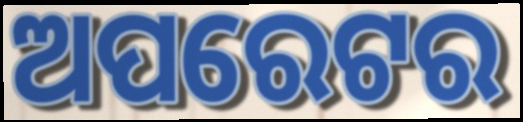
ଅପରେଟର